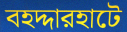
বহদ্দারহাটে